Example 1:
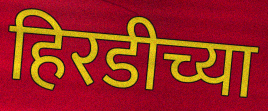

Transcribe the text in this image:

हिरडीच्या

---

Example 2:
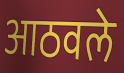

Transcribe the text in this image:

आठवले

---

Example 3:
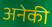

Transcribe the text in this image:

अनेकी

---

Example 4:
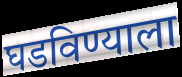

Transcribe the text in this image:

घडविण्याला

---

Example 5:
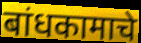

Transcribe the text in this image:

बांधकामाचे